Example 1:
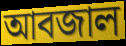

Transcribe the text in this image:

আবজাল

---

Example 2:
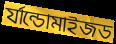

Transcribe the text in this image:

র্যান্ডোমাইজড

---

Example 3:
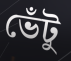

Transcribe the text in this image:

ভেঁটু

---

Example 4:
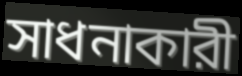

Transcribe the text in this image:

সাধনাকারী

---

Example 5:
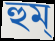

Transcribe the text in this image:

হুম্